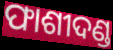
ଫାଶୀଦଣ୍ଡ